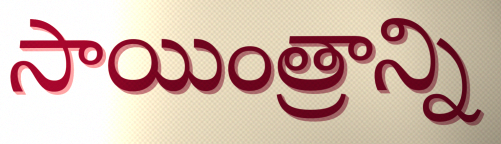
సాయింత్రాన్ని